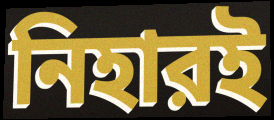
নিহারই